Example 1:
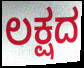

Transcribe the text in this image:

ಲಕ್ಷದ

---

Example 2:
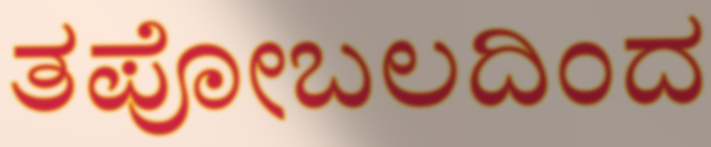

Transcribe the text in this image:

ತಪೋಬಲದಿಂದ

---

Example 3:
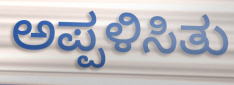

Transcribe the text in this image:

ಅಪ್ಪಳಿಸಿತು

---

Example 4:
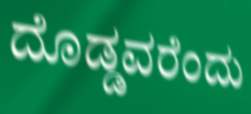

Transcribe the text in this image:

ದೊಡ್ಡವರೆಂದು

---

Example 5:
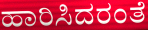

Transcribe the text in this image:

ಹಾರಿಸಿದರಂತೆ